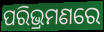
ପରିଭ୍ରମଣରେ